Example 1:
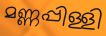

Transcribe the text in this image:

മണ്ണപ്പിള്ളി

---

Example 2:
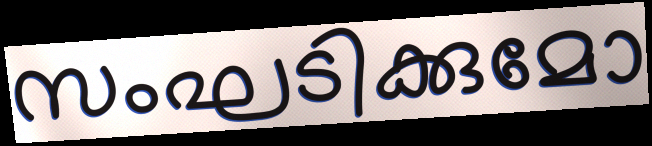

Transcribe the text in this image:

സംഘടിക്കുമോ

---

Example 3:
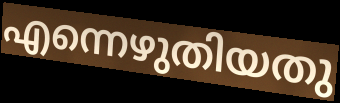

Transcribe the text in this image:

എന്നെഴുതിയതു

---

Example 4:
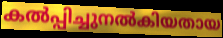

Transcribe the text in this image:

കൽപ്പിച്ചുനൽകിയതായ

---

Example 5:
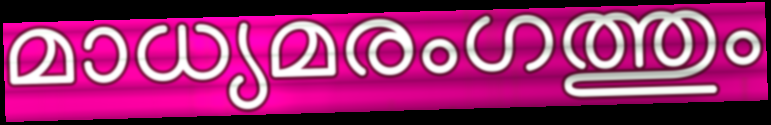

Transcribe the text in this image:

മാധ്യമരംഗത്തും